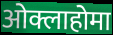
ओक्लाहोमा